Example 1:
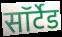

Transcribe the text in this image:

सॉर्टेड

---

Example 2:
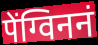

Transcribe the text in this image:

पेंग्विननं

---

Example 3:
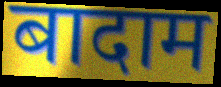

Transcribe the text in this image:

बादाम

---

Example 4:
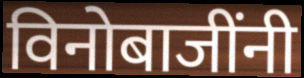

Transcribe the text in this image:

विनोबाजींनी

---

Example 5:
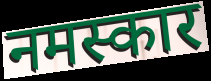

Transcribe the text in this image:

नमस्कार